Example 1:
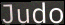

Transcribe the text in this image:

Judo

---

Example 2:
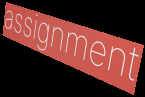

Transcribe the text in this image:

assignment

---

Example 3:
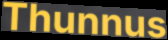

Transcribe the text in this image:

Thunnus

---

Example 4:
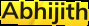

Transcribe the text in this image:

Abhijith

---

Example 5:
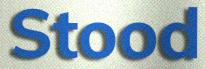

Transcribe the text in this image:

Stood